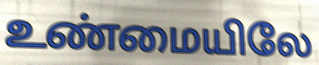
உண்மையிலே